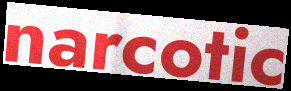
narcotic